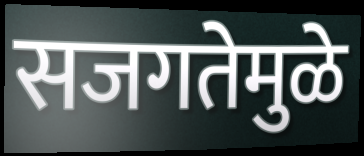
सजगतेमुळे